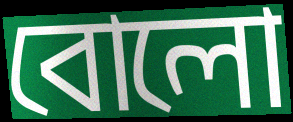
বোলো